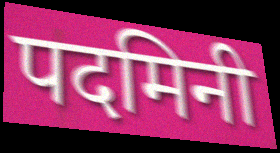
पदमिनी